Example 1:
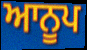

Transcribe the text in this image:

ਆਨੂਪ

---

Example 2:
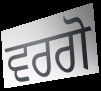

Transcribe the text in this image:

ਵਰਗੋ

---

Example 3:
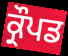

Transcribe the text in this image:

ਕ੍ਰੌਪਡ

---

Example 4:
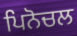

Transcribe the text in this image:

ਪਿਨੋਚਲ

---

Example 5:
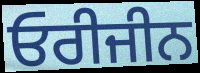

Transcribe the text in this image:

ਓਰੀਜੀਨ